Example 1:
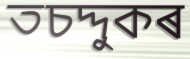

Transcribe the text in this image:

তচদ্দুকৰ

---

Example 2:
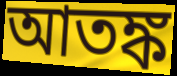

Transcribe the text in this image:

আতঙ্ক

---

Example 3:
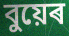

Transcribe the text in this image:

বুয়েৰ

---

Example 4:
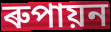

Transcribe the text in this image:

ৰুপায়ন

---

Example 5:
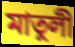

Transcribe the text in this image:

মাতুলী